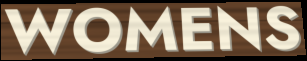
WOMENS